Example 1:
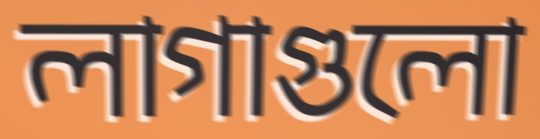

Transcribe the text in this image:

লাগাগুলো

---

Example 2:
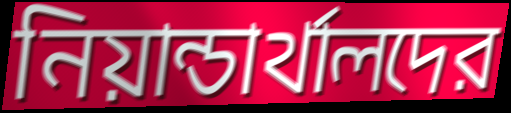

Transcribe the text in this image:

নিয়ান্ডার্থালদের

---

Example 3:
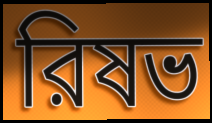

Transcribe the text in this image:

রিষভ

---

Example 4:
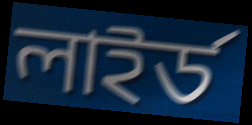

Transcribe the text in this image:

লাইর্ড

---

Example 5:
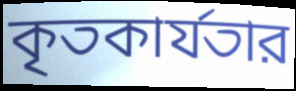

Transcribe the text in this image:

কৃতকার্যতার